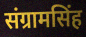
संग्रामसिंह